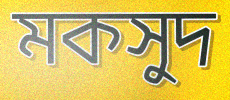
মকসুদ